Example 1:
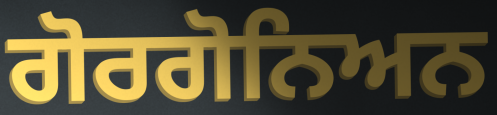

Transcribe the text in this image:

ਗੋਰਗੋਨਿਅਨ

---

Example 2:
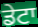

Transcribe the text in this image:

ਡੇਟਾ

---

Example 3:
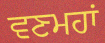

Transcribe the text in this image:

ਵਣਮਹਾਂ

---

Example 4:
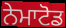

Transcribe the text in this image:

ਨੇਮਾਟੋਡ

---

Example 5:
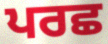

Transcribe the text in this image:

ਪਰਛ